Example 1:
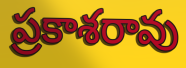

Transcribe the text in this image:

ప్రకాశరావు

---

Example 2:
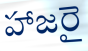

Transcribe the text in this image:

హాజరై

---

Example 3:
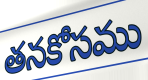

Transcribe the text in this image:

తనకోసము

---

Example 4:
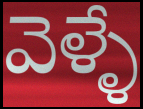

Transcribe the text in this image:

వెళ్ళే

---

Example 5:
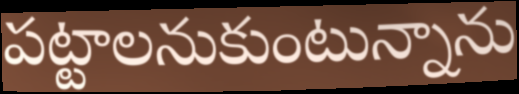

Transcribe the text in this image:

పట్టాలనుకుంటున్నాను